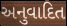
અનુવાદિત